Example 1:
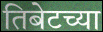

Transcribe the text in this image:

तिबेटच्या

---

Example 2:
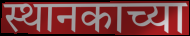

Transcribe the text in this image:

स्थानकाच्या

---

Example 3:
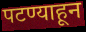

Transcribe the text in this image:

पटण्याहून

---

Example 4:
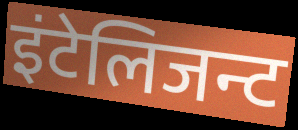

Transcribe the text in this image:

इंटेलिजन्ट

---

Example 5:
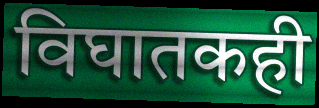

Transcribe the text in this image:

विघातकही